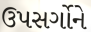
ઉપસર્ગોને